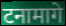
टनामागे